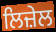
ਲਿਜ਼ੇਲ